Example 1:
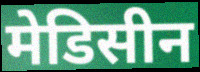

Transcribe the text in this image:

मेडिसीन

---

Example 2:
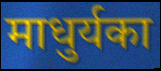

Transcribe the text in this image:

माधुर्यका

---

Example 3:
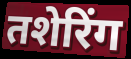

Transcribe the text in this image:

तशेरिंग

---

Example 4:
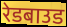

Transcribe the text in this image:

रेडबाउड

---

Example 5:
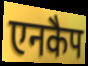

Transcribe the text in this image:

एनकैप